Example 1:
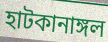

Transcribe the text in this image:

হাটকানাঙ্গল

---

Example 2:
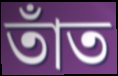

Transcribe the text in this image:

তাঁত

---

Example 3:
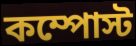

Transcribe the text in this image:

কম্পোস্ট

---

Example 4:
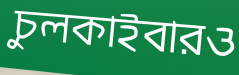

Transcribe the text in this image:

চুলকাইবারও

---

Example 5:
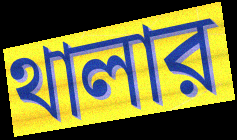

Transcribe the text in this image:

থালার